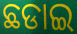
ଛଡାଇ